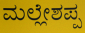
ಮಲ್ಲೇಶಪ್ಪ